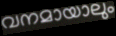
വനമായാലും